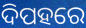
ଦିପହରେ